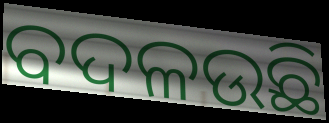
ବଦଳଉଛି